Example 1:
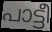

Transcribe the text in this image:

പാട്ടീ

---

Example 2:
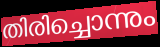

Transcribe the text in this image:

തിരിച്ചൊന്നും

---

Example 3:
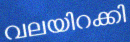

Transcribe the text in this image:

വലയിറക്കി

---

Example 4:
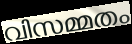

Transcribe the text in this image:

വിസമ്മതം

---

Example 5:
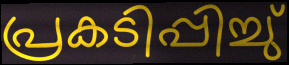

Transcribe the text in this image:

പ്രകടിപ്പിച്ചു്